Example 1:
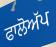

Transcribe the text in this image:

ਫਾਲੋਅੱਪ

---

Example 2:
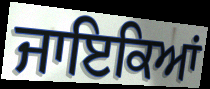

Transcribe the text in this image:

ਜਾਇਕਿਆਂ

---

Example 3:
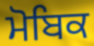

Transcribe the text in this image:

ਮੋਬਿਕ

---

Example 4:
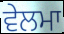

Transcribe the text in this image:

ਵੇਲਮਾ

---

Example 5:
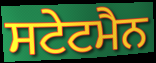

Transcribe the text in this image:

ਸਟੇਟਮੈਨ